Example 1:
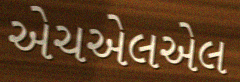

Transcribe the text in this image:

એચએલએલ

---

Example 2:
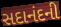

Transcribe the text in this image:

સદાનંદની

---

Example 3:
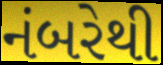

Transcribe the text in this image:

નંબરેથી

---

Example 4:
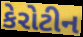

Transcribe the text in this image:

કેરોટીન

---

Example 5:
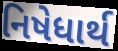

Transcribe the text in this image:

નિષેધાર્થ